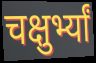
चक्षुर्भ्यां